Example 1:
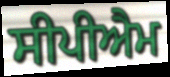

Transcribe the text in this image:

ਸੀਪੀਐਮ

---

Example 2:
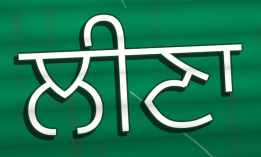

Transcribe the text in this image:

ਲੀਣਾ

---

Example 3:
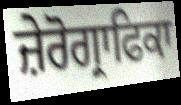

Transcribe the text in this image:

ਜ਼ੇਰੋਗ੍ਰਾਫਿਕਾ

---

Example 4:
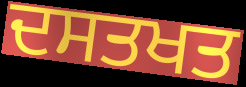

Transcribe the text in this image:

ਦਸਤਖਤ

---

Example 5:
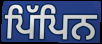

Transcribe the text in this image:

ਪਿੱਪਿਨ